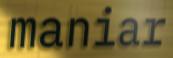
maniar